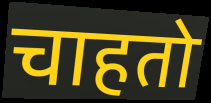
चाहतो